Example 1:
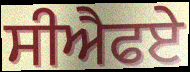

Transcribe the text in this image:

ਸੀਐਫਏ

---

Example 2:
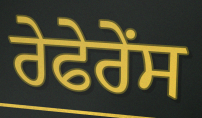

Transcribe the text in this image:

ਰੇਫੇਰੇਂਸ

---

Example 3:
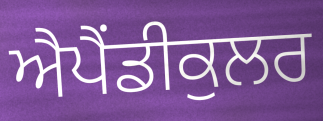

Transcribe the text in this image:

ਐਪੈਂਡੀਕੁਲਰ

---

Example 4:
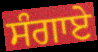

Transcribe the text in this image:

ਸੰਗਾਏ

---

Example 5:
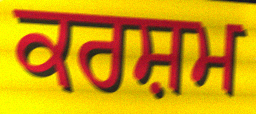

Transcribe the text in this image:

ਕਰਸ਼ਮ